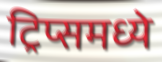
ट्रिप्समध्ये